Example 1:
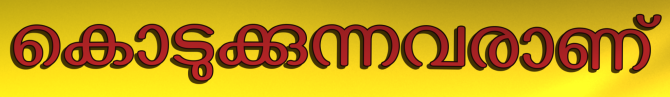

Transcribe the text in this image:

കൊടുക്കുന്നവരാണ്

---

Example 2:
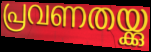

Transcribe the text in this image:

പ്രവണതയ്ക്കു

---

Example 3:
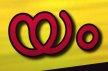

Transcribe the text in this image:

യം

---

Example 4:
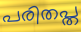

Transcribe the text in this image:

പരിതപ്ത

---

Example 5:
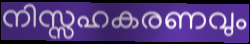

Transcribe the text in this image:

നിസ്സഹകരണവും